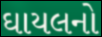
ઘાયલનો